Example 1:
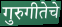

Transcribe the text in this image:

गुरुगीतेचे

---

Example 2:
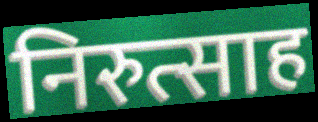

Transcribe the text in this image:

निरुत्साह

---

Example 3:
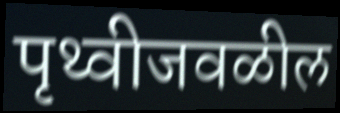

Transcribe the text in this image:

पृथ्वीजवळील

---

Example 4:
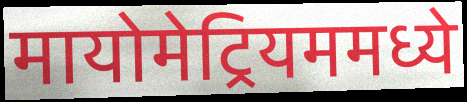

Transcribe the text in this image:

मायोमेट्रियममध्ये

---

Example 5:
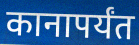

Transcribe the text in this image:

कानापर्यंत